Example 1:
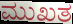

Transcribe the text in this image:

ಮುಖತ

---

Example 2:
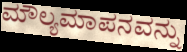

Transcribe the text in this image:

ಮೌಲ್ಯಮಾಪನವನ್ನು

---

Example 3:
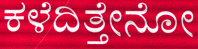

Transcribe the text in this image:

ಕಳೆದಿತ್ತೇನೋ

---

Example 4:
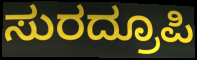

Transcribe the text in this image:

ಸುರದ್ರೂಪಿ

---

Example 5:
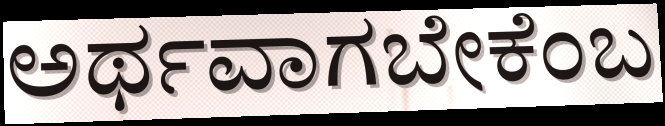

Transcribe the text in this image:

ಅರ್ಥವಾಗಬೇಕೆಂಬ